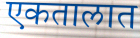
एकतालात